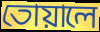
তোয়ালে